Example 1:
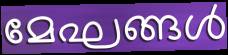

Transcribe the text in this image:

മേഘങ്ങൾ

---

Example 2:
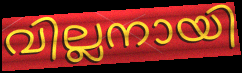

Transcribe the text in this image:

വില്ലനായി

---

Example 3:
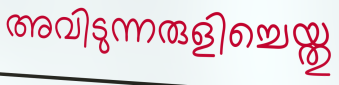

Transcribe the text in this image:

അവിടുന്നരുളിച്ചെയ്തു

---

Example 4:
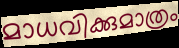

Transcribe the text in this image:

മാധവിക്കുമാത്രം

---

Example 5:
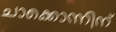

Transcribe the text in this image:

ചാക്കൊന്നിന്